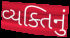
વ્યક્તિનું